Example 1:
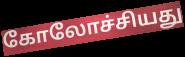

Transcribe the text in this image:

கோலோச்சியது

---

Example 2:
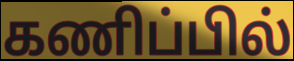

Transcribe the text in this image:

கணிப்பில்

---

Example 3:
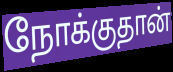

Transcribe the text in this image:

நோக்குதான்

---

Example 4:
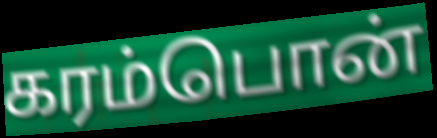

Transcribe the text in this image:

கரம்பொன்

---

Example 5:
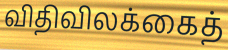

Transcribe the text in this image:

விதிவிலக்கைத்